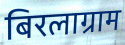
बिरलाग्राम